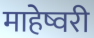
माहेष्वरी